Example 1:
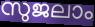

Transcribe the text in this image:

സുജലാം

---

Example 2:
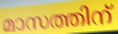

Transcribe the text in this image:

മാസത്തിന്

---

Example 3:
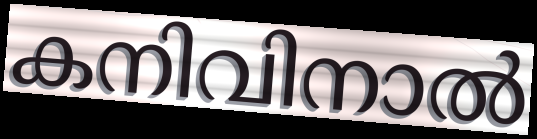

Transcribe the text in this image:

കനിവിനാൽ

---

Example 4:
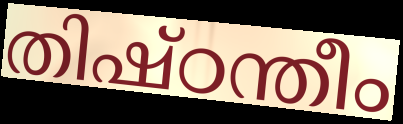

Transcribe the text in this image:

തിഷ്ഠന്തീം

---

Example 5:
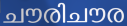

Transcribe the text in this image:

ചൗരിചൗര